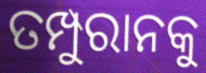
ତମ୍ପୁରାନକୁ